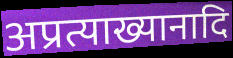
अप्रत्याख्यानादि